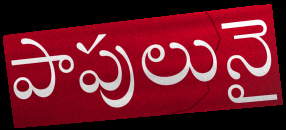
పాపులునై